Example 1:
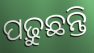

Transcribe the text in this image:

ପଢ଼ୁଛନ୍ତି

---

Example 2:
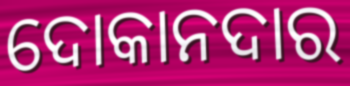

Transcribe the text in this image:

ଦୋକାନଦାର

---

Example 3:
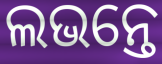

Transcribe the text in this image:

ଲଭନ୍ତେ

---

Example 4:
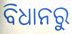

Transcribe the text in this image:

ବିଧାନରୁ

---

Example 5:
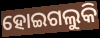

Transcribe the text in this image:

ହୋଇଗଲୁକି